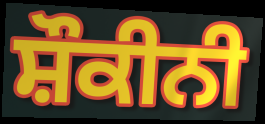
ਸ਼ੌਕੀਨੀ